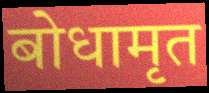
बोधामृत